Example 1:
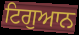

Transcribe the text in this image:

ਟਿਗੁਆਨ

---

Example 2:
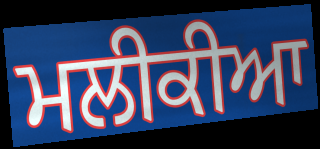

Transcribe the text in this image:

ਮਲੀਕੀਆ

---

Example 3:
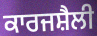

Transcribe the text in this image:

ਕਾਰਜਸ਼ੈਲੀ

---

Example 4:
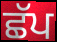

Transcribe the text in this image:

ਛੱਪ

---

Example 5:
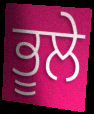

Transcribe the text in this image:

ਭੂਲੇ